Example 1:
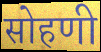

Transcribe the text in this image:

सोहणी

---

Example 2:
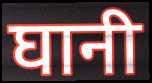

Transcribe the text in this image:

घानी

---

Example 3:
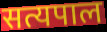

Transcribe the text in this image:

सत्यपाल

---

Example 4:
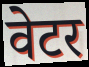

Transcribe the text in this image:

वेटर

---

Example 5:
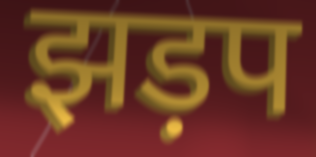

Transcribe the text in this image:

झड़प